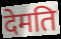
देमति